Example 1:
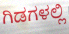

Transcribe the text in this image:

ಗಿಡಗಳಲ್ಲಿ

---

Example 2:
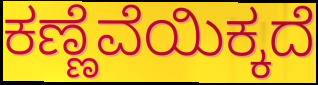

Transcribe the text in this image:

ಕಣ್ಣೆವೆಯಿಕ್ಕದೆ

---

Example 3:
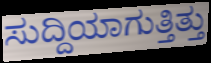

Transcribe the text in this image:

ಸುದ್ದಿಯಾಗುತ್ತಿತ್ತು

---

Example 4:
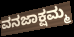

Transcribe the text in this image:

ವನಜಾಕ್ಷಮ್ಮ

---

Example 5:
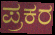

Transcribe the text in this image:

ಪ್ರಕರ